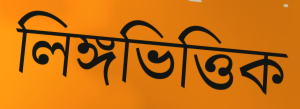
লিঙ্গভিত্তিক